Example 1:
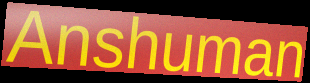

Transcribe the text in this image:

Anshuman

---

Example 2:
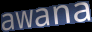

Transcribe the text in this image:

awana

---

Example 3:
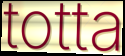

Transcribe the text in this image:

totta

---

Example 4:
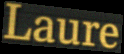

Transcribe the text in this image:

Laure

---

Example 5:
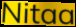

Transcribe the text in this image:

Nitaa